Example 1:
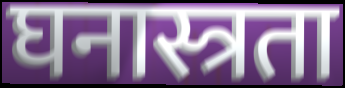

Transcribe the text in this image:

घनास्त्रता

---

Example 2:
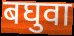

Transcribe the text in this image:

बघुवा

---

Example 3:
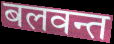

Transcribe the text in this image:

बलवन्‍त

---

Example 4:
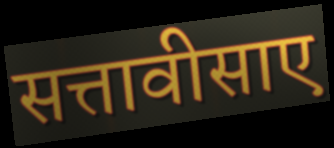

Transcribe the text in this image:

सत्तावीसाए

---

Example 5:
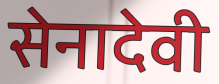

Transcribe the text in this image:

सेनादेवी